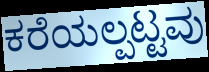
ಕರೆಯಲ್ಪಟ್ಟವು